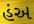
હંઅ